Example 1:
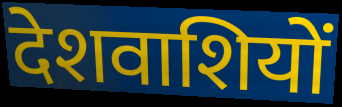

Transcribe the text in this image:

देशवाशियों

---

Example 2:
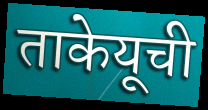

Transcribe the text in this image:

ताकेयूची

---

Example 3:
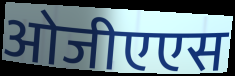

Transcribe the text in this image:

ओजीएएस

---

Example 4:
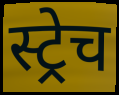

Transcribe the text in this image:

स्ट्रेच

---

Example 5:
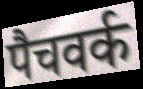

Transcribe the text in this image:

पैचवर्क